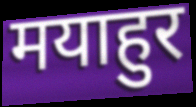
मयाहुर